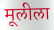
मूलीला